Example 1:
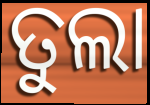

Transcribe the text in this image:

ତୁଲା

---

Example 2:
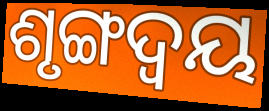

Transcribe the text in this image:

ଶୃଙ୍ଗଦ୍ୱୟ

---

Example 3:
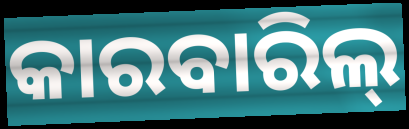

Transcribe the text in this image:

କାରବାରିଲ୍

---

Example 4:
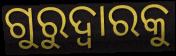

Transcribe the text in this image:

ଗୁରୁଦ୍ୱାରକୁ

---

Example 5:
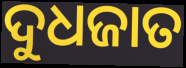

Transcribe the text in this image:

ଦୁଧଜାତ